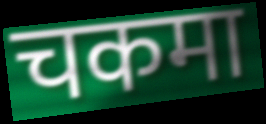
चकमा